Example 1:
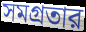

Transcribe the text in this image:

সমগ্রতার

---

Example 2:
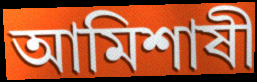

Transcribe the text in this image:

আমিশাষী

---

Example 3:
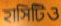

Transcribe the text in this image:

হাসিটিও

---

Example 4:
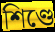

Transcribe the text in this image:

শিণ্ডে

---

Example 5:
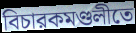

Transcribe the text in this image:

বিচারকমণ্ডলীতে